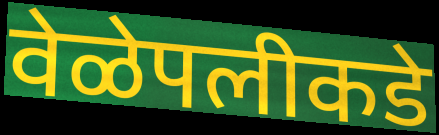
वेळेपलीकडे